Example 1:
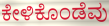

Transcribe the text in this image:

ಕೇಳಿಕೊಂಡೆವು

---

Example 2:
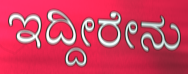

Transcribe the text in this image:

ಇದ್ದೀರೇನು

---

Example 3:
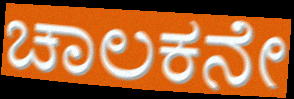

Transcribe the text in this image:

ಚಾಲಕನೇ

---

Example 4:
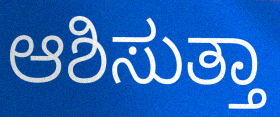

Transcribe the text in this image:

ಆಶಿಸುತ್ತಾ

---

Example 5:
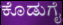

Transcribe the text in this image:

ಕೊಡುಗೈ